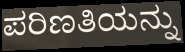
ಪರಿಣತಿಯನ್ನು